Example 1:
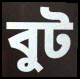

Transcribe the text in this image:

বুট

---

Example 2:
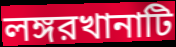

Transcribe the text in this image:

লঙ্গরখানাটি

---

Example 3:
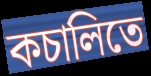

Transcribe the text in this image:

কচালিতে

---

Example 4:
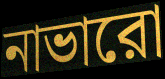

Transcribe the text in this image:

নাভারো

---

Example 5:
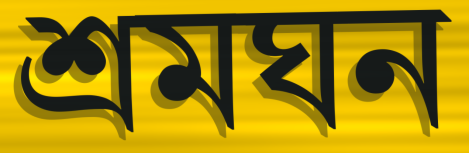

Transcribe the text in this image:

শ্রমঘন